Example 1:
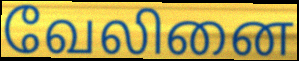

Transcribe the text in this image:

வேலினை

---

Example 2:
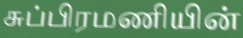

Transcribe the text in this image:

சுப்பிரமணியின்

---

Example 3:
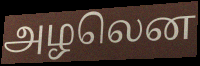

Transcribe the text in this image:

அழலென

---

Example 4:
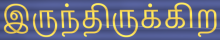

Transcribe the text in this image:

இருந்திருக்கிற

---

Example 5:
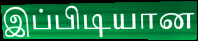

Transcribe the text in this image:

இப்பிடியான